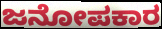
ಜನೋಪಕಾರ